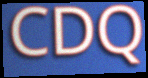
CDQ